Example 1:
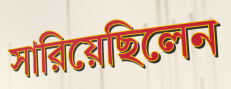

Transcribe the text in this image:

সারিয়েছিলেন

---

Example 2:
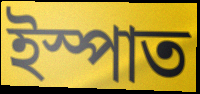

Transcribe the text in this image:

ইস্পাত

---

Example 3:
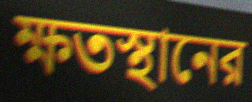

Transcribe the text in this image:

ক্ষতস্থানের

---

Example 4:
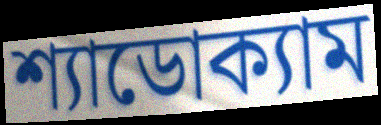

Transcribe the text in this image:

শ্যাডোক্যাম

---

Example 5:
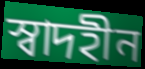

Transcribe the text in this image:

স্বাদহীন